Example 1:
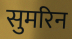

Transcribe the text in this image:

सुमरिन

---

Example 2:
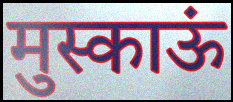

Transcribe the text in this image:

मुस्काऊं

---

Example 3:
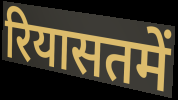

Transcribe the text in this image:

रियासतमें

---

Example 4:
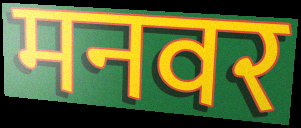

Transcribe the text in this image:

मनवर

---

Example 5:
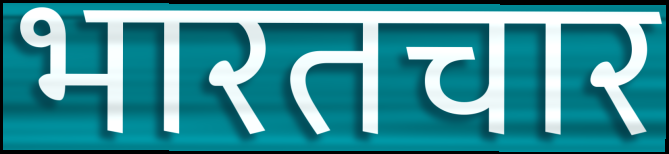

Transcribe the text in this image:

भारतचार